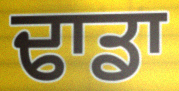
ਢਾਡਾ